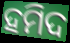
ହମିଦ